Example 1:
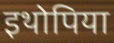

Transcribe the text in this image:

इथोपिया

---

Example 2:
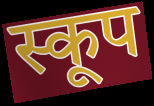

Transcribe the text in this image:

स्कूप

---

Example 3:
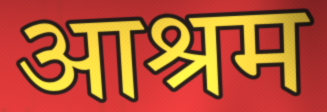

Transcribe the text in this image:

आश्रम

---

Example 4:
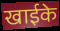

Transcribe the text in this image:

खाईके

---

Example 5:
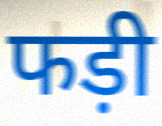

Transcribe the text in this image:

फड़ी